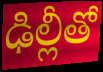
ఢిల్లీతో